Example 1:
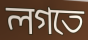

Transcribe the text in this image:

লগতে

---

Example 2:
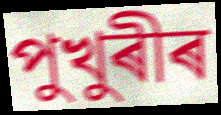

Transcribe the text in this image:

পুখুৰীৰ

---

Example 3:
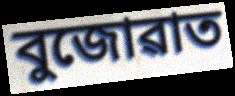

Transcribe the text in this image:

বুজোৱাত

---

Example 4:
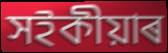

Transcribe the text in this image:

সইকীয়াৰ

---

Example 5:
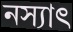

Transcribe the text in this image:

নস্যাৎ